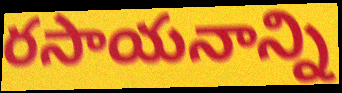
రసాయనాన్ని